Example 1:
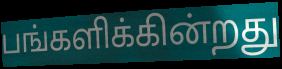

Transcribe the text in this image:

பங்களிக்கின்றது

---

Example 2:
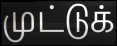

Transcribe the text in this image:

முட்டுக்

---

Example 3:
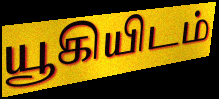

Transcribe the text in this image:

யூகியிடம்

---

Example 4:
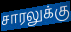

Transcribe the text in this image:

சாரலுக்கு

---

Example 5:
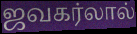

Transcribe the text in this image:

ஜவகர்லால்